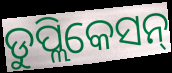
ଡୁପ୍ଲିକେସନ୍